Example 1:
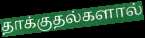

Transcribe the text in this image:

தாக்குதல்களால்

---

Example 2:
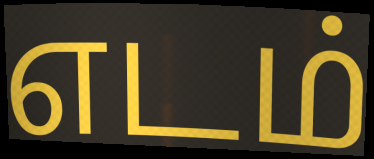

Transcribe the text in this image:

எடம்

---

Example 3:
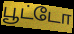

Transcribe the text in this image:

பூட்டோ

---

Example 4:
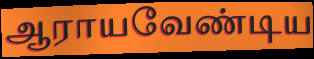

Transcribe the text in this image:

ஆராயவேண்டிய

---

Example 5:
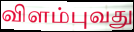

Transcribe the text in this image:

விளம்புவது